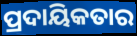
ପ୍ରଦାୟିକତାର